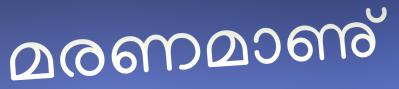
മരണമാണു്